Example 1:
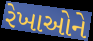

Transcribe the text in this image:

રેખાઓને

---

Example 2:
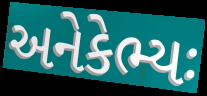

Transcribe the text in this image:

અનેકેભ્યઃ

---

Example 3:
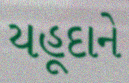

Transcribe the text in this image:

યહૂદાને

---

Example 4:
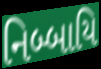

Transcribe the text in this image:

નિબ્બાયિ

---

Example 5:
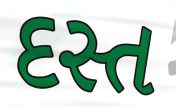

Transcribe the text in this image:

દસ્ત